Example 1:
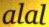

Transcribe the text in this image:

alal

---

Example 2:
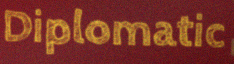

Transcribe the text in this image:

Diplomatic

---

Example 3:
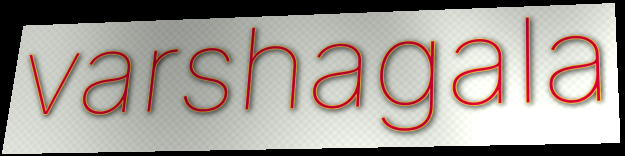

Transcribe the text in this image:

varshagala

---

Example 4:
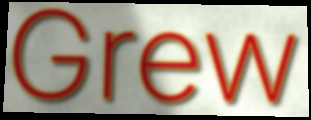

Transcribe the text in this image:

Grew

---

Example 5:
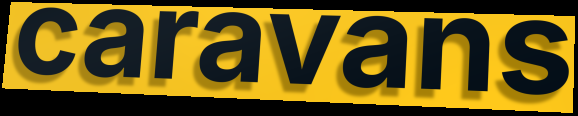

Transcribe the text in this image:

caravans